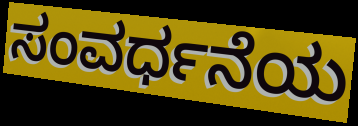
ಸಂವರ್ಧನೆಯ